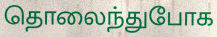
தொலைந்துபோக